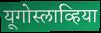
यूगोस्लाव्हिया